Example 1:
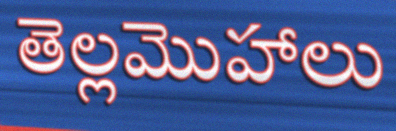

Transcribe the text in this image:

తెల్లమొహాలు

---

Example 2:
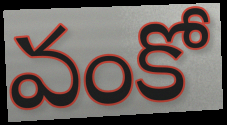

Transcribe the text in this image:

వంకో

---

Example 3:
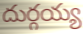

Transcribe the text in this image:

దుర్గయ్య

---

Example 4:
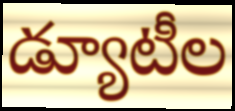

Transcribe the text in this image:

డ్యూటీల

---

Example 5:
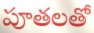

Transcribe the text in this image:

పూతలతో